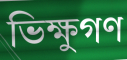
ভিক্ষুগণ